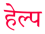
हेल्प